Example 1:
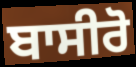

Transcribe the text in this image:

ਬਾਸੀਰੋ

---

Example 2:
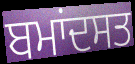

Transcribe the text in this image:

ਬਮਾਂਦਸਤ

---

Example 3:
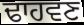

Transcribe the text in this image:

ਢਾਹਵਣ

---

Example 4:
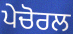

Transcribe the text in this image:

ਪੇਚੋਰਲ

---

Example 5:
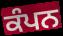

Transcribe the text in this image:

ਕੰਪਨ